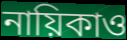
নায়িকাও